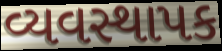
વ્યવસ્થાપક